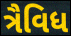
ત્રૈવિધ